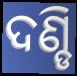
ଦଣ୍ଡି